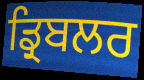
ਡ੍ਰਿਬਲਰ